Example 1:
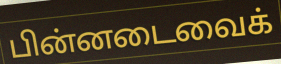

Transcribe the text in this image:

பின்னடைவைக்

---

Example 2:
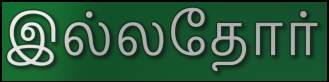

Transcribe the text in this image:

இல்லதோர்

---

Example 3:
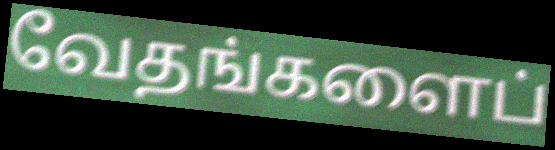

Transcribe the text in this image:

வேதங்களைப்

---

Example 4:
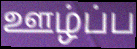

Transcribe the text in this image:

ஊழ்ப்ப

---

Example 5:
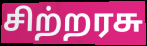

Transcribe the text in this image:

சிற்றரசு